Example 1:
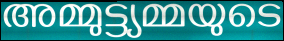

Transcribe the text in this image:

അമ്മുട്ട്യമ്മയുടെ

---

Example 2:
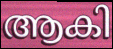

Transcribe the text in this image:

ആകി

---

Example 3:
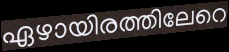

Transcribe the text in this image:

ഏഴായിരത്തിലേറെ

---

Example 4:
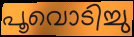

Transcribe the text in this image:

പൂവൊടിച്ചു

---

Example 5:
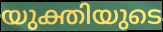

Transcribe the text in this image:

യുക്തിയുടെ